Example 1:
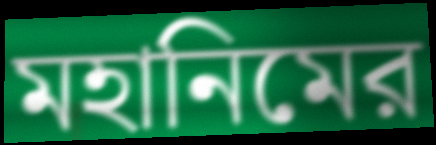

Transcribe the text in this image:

মহানিমের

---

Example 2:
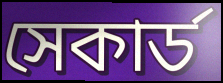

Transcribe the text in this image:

সেকার্ড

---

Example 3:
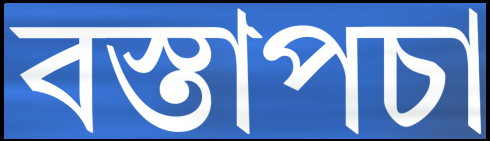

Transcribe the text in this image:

বস্তাপচা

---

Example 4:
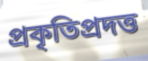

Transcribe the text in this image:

প্রকৃতিপ্রদত্ত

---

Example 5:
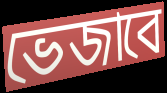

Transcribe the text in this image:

ভেজাবে